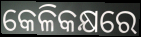
କେଳିକକ୍ଷରେ